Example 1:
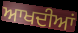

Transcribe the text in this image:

ਆਖਦੀਆਂ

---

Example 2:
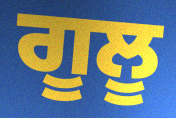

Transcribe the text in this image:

ਗੂਲੂ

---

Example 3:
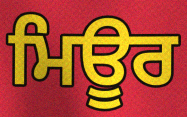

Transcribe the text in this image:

ਮਿਊਰ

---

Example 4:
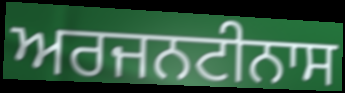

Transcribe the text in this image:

ਅਰਜਨਟੀਨਾਸ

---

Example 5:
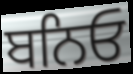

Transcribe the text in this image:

ਬਨਿਓ